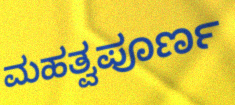
ಮಹತ್ವಪೂರ್ಣ